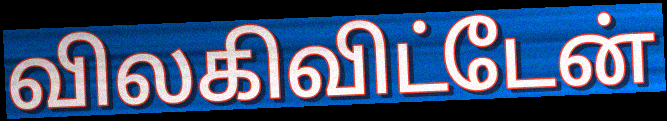
விலகிவிட்டேன்